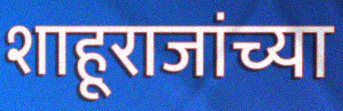
शाहूराजांच्या